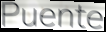
Puente